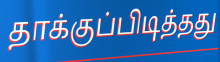
தாக்குப்பிடித்தது